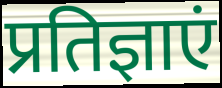
प्रतिज्ञाएं